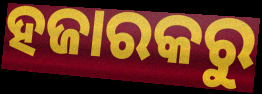
ହଜାରକରୁ